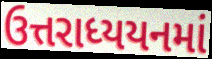
ઉત્તરાધ્યયનમાં